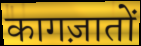
कागज़ातों